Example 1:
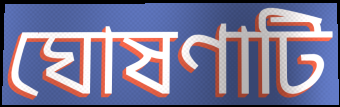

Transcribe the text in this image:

ঘোষণাটি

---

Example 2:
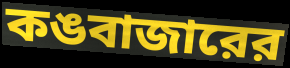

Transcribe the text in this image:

কঙবাজারের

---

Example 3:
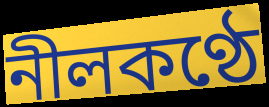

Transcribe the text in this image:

নীলকণ্ঠে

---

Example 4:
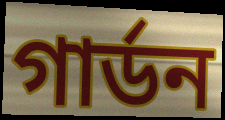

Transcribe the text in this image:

গার্ডন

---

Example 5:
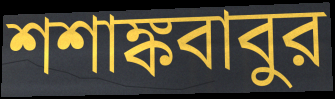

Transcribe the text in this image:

শশাঙ্কবাবুর